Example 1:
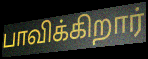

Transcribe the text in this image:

பாவிக்கிறார்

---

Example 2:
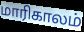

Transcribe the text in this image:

மாரிகாலம்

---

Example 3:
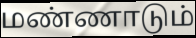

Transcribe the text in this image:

மண்ணாடும்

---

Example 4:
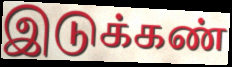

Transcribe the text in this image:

இடுக்கண்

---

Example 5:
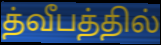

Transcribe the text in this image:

த்வீபத்தில்